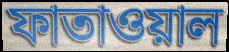
ফাতাওয়াল